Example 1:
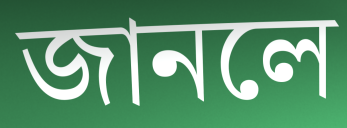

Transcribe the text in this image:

জানলে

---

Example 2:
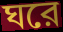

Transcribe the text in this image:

ঘরে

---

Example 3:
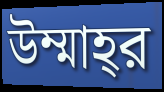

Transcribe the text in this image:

উম্মাহ্‌র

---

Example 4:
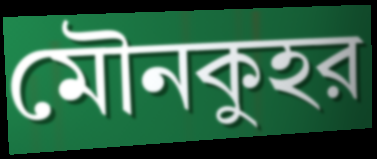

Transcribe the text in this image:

মৌনকুহর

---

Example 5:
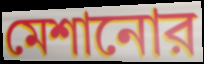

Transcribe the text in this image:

মেশানোর